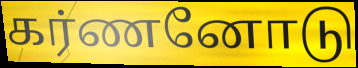
கர்ணனோடு